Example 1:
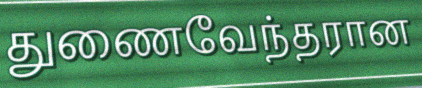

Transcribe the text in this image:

துணைவேந்தரான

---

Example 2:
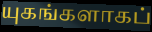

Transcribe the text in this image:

யுகங்களாகப்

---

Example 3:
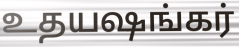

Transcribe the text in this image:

உதயஷங்கர்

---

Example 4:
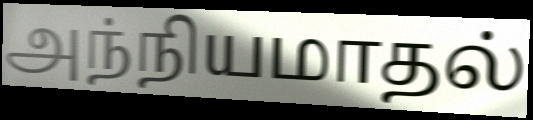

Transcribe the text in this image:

அந்நியமாதல்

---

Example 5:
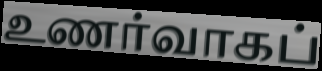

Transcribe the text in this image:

உணர்வாகப்